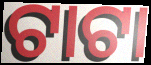
ଟାଟା